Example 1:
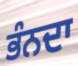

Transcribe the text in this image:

ਭੰਨਦਾ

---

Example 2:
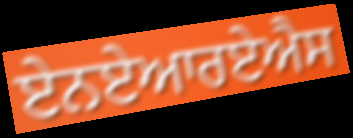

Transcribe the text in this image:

ਏਨਏਆਰਏਐਸ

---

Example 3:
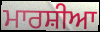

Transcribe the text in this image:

ਮਾਰਸ਼ੀਆ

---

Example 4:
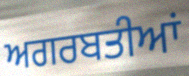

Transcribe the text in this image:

ਅਗਰਬਤੀਆਂ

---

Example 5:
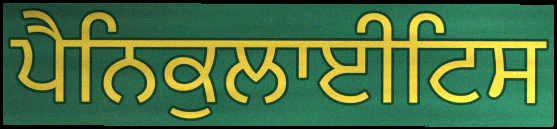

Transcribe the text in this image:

ਪੈਨਿਕੁਲਾਈਟਿਸ